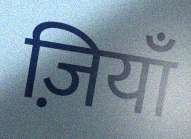
ज़ियाँ